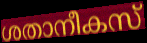
ശതാനീകസ്